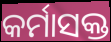
କର୍ମାସକ୍ତ